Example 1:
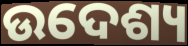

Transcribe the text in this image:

ଉଦେଶ୍ୟ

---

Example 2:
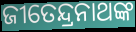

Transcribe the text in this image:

ଜୀତେନ୍ଦ୍ରନାଥଙ୍କ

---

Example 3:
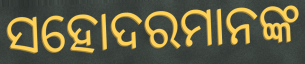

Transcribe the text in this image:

ସହୋଦରମାନଙ୍କ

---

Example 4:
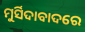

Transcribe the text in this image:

ମୁର୍ସିଦାବାଦରେ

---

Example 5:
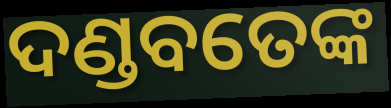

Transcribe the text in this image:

ଦଣ୍ଡବତେଙ୍କ